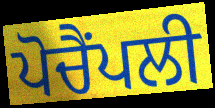
ਪੋਚੈਂਪਲੀ